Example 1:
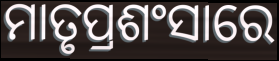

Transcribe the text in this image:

ମାତୃପ୍ରଶଂସାରେ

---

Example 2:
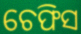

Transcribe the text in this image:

ଚେଫିସ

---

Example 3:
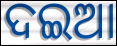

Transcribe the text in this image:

ଦଇଆ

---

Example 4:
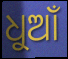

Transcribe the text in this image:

ଧୁଆଁ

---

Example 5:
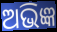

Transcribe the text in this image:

ଅଭିଜ୍ଞ